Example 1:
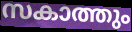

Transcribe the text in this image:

സകാത്തും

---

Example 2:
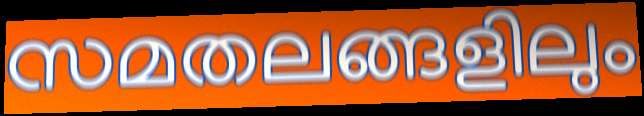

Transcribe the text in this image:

സമതലങ്ങളിലും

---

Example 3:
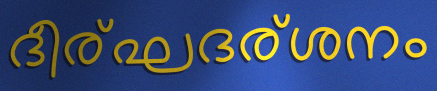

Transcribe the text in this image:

ദീര്ഘദര്ശനം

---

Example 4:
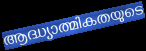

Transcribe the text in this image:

ആദ്ധ്യാത്മികതയുടെ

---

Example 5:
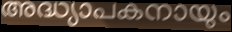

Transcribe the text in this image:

അദ്ധ്യാപകനായും